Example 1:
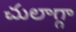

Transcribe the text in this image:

చులాగ్గా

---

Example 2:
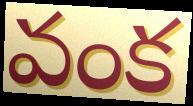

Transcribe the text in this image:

వంక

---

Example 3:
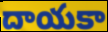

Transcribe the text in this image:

దాయకా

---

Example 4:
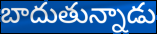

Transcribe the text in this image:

బాదుతున్నాడు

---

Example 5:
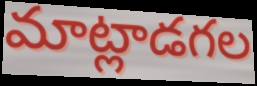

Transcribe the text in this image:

మాట్లాడగల